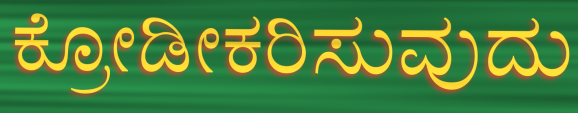
ಕ್ರೋಡೀಕರಿಸುವುದು